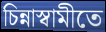
চিন্নাস্বামীতে